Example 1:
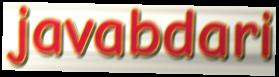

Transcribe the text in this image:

javabdari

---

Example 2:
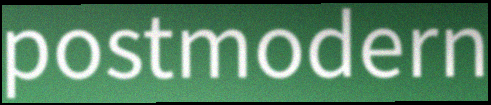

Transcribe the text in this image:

postmodern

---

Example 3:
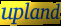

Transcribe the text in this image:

upland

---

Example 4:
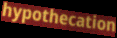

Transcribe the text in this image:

hypothecation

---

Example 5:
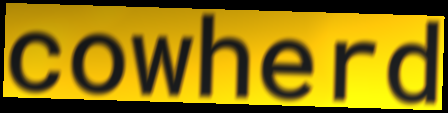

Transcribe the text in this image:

cowherd